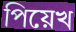
পিয়েখ